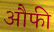
औफी